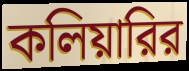
কলিয়ারির